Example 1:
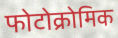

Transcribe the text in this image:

फोटोक्रोमिक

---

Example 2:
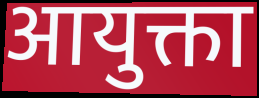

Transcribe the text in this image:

आयुक्ता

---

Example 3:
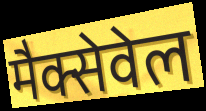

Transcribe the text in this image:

मैक्सेवेल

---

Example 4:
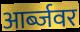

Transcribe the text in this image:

आर्ब्जवर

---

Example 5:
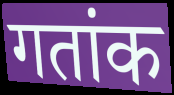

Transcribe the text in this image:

गतांक